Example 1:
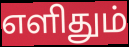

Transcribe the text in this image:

எளிதும்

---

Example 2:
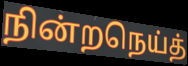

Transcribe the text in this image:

நின்றநெய்த்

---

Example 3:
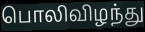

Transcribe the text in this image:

பொலிவிழந்து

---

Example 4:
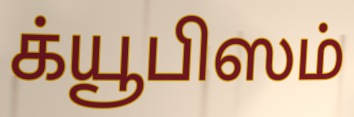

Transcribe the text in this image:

க்யூபிஸம்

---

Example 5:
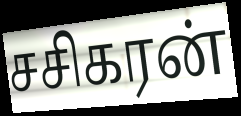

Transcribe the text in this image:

சசிகரன்